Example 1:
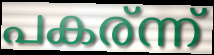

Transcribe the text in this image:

പകര്ന്ന്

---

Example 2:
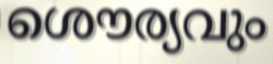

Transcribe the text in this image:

ശൌര്യവും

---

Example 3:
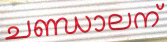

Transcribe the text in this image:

ചണ്ഡാലന്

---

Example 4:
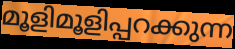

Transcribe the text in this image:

മൂളിമൂളിപ്പറക്കുന്ന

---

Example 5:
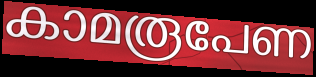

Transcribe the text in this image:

കാമരൂപേണ